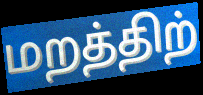
மறத்திற்